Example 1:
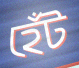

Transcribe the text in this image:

হেঁট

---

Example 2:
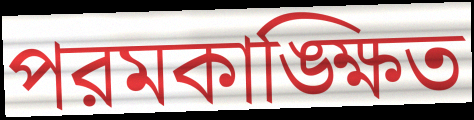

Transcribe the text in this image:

পরমকাঙ্ক্ষিত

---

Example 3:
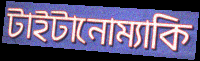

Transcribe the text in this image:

টাইটানোম্যাকি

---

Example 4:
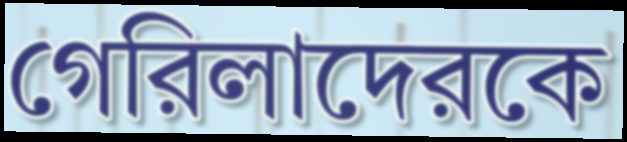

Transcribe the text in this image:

গেরিলাদেরকে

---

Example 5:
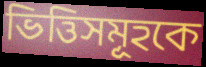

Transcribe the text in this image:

ভিত্তিসমূহকে